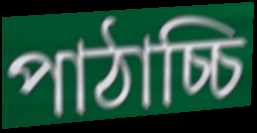
পাঠাচ্চি